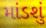
માંડશું